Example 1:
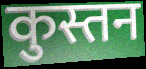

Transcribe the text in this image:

कुस्तन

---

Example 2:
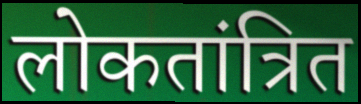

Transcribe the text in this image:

लोकतांत्रित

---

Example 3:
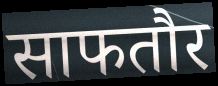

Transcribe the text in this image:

साफतौर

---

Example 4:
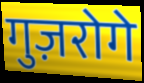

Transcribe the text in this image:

गुज़रोगे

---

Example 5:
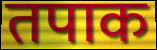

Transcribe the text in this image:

तपाक